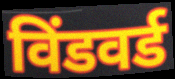
विंडवर्ड